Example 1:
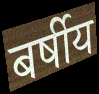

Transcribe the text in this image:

बर्षीय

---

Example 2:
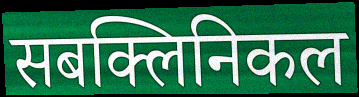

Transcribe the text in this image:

सबक्लिनिकल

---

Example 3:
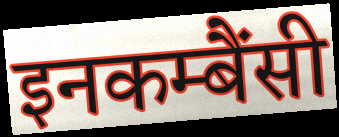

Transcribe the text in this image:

इनकम्बैंसी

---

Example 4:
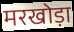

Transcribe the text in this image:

मरखोड़ा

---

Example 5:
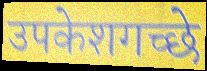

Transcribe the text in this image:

उपकेशगच्छे